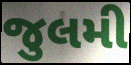
જુલમી